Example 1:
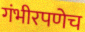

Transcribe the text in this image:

गंभीरपणेच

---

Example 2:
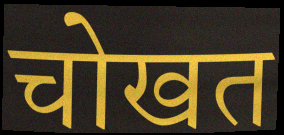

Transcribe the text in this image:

चोखत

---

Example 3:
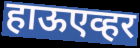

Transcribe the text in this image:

हाऊएव्हर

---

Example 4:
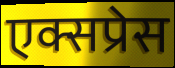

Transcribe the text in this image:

एक्सप्रेस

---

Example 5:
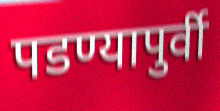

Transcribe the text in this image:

पडण्यापुर्वी